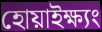
হোয়াইক্ষ্যং